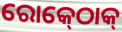
ରୋକ୍‍ଠୋକ୍